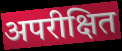
अपरीक्षित